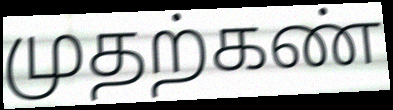
முதற்கண்